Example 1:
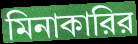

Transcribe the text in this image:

মিনাকারির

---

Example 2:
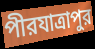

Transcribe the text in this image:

পীরযাত্রাপুর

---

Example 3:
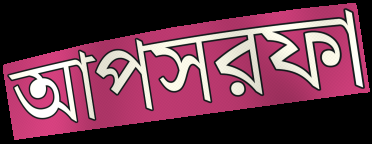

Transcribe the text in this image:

আপসরফা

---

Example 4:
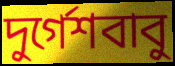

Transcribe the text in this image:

দুর্গেশবাবু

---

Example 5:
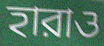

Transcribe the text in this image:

হারাও